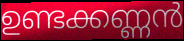
ഉണ്ടക്കണ്ണൻ